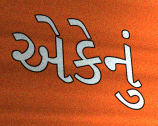
એકેનું